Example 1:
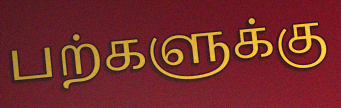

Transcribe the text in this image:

பற்களுக்கு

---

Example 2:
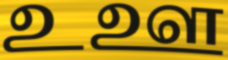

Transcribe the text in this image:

உஊ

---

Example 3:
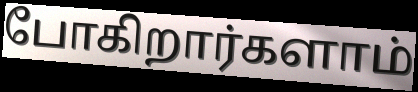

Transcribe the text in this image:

போகிறார்களாம்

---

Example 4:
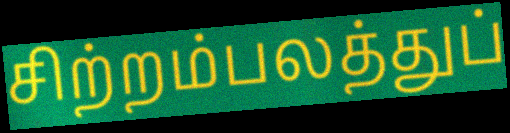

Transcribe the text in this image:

சிற்றம்பலத்துப்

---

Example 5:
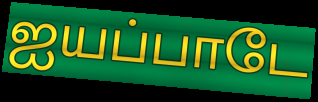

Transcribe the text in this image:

ஐயப்பாடே